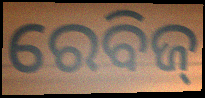
ରେବିଜ୍